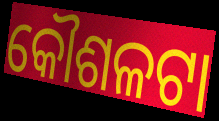
କୌଶଳଟା